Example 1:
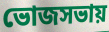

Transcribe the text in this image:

ভোজসভায়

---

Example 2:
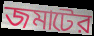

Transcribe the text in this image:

জমাটের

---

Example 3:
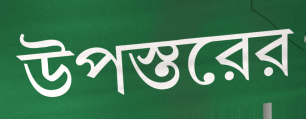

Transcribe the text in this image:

উপস্তরের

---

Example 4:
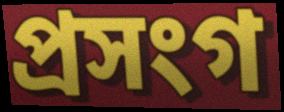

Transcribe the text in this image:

প্রসংগ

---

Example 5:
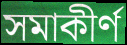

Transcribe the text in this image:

সমাকীর্ণ